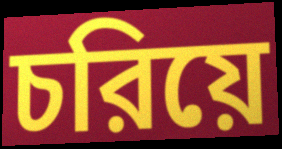
চরিয়ে